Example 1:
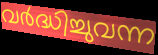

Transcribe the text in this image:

വർദ്ധിച്ചുവന്ന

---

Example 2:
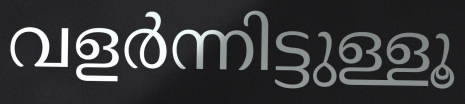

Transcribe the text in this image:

വളർന്നിട്ടുള്ളൂ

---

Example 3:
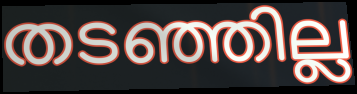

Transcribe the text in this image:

തടഞ്ഞില്ല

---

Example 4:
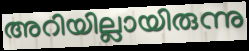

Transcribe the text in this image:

അറിയില്ലായിരുന്നു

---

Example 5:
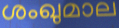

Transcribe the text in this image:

ശംഖുമാല